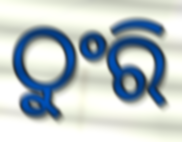
ଠୁଂରି